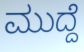
ಮುದ್ದೆ